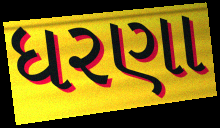
ધરણા